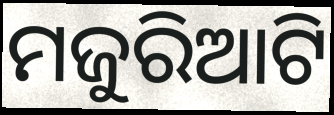
ମଜୁରିଆଟି